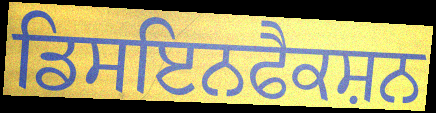
ਡਿਸਇਨਫੈਕਸ਼ਨ